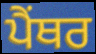
ਪੈੰਥਰ